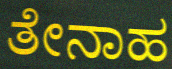
ತೇನಾಹ